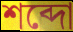
শব্দো